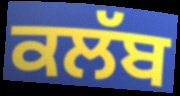
ਕਲੱਬ